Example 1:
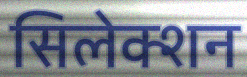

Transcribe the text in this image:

सिलेक्शन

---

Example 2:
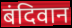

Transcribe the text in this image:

बंदिवान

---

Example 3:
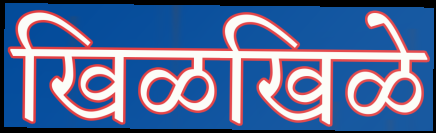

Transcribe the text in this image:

खिळखिळे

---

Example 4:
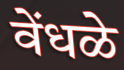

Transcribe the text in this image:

वेंधळे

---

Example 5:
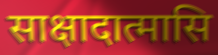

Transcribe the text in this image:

साक्षादात्मासि